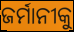
ଜର୍ମାନୀକୁ